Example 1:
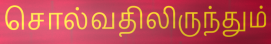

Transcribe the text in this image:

சொல்வதிலிருந்தும்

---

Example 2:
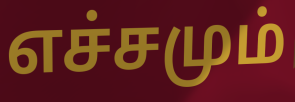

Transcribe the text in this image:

எச்சமும்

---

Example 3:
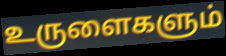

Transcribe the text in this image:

உருளைகளும்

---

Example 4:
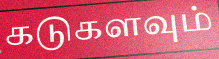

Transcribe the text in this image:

கடுகளவும்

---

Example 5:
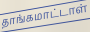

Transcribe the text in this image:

தாங்கமாட்டாள்